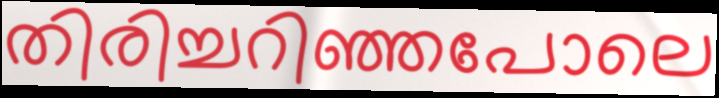
തിരിച്ചറിഞ്ഞപോലെ